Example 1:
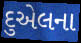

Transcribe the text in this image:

દુએલના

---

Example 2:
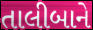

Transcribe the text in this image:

તાલીબાને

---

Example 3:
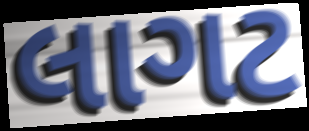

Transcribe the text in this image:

લાગટ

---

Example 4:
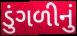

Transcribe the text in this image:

ડુંગળીનું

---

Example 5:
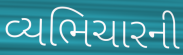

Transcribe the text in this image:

વ્યભિચારની